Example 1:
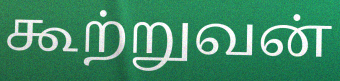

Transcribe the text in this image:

கூற்றுவன்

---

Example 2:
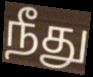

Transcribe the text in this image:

நீது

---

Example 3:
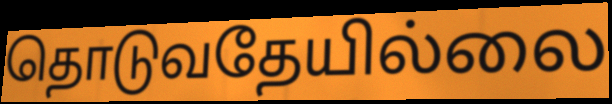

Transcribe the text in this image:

தொடுவதேயில்லை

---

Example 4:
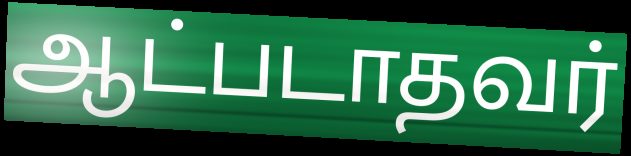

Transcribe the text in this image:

ஆட்படாதவர்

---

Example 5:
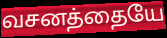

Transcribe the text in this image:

வசனத்தையே